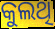
କୁଲଥି